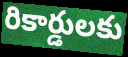
రికార్డులకు